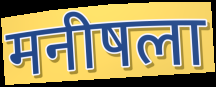
मनीषला